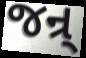
જન્ર્